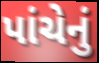
પાંચેનું